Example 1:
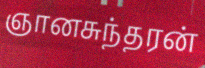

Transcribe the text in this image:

ஞானசுந்தரன்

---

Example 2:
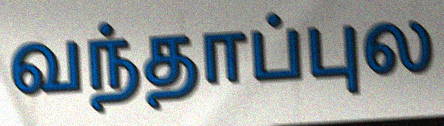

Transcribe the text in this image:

வந்தாப்புல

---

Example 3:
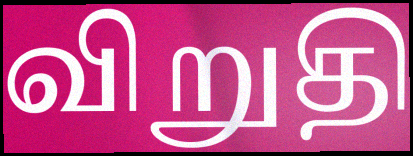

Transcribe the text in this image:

விறுதி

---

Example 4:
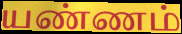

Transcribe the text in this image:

யண்ணம்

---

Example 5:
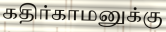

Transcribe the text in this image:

கதிர்காமனுக்கு